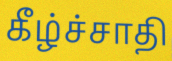
கீழ்ச்சாதி